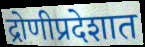
द्रोणीप्रदेशात